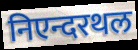
निएन्दरथल